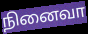
நினைவா